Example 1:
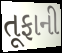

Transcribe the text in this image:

તૂફાની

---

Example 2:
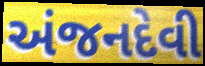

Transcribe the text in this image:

અંજનદેવી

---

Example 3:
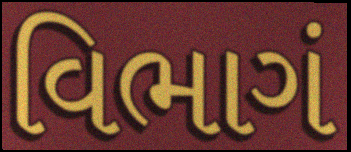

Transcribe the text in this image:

વિભાગં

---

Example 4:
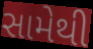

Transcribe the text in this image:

સામેથી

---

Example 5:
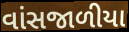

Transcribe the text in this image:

વાંસજાળીયા